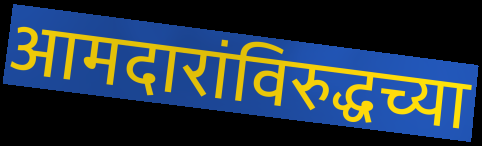
आमदारांविरुद्धच्या